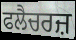
ਫਲੈਚਰਜ਼